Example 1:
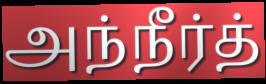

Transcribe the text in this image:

அந்நீர்த்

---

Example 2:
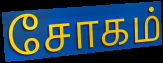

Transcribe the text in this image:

சோகம்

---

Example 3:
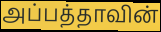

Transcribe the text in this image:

அப்பத்தாவின்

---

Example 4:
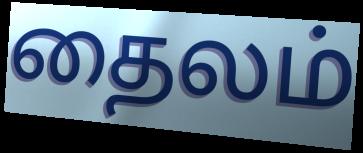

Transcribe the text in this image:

தைலம்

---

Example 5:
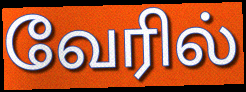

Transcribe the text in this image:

வேரில்